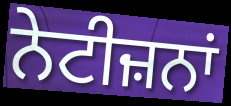
ਨੇਟੀਜ਼ਨਾਂ